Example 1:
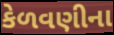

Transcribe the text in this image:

કેળવણીના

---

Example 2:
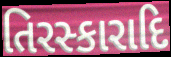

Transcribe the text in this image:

તિરસ્કારાદિ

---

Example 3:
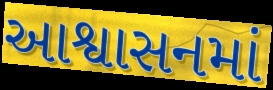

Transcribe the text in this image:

આશ્વાસનમાં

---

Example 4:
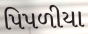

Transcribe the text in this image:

પિપળીયા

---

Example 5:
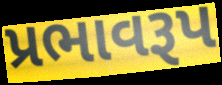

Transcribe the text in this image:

પ્રભાવરૂપ